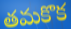
తమకొక